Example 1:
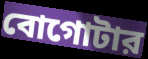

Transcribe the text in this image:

বোগোটার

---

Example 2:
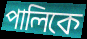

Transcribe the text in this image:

পালিকে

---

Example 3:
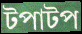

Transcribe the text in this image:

টপাটপ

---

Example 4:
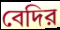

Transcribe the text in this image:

বেদির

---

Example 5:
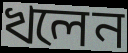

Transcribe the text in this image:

খলেন